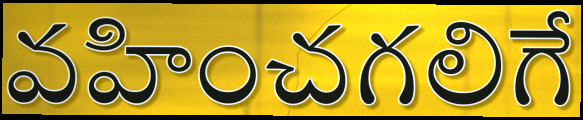
వహించగలిగే